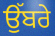
ਉੱਬਰੇ